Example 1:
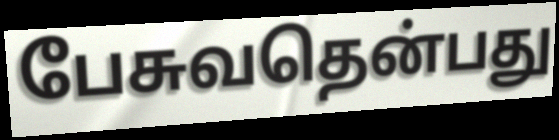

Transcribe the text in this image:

பேசுவதென்பது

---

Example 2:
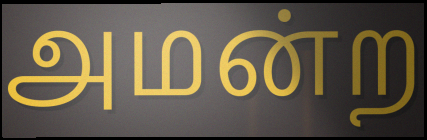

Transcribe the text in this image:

அமன்ற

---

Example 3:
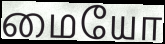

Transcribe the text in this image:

மையோ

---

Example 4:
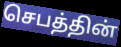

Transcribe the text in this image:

செபத்தின்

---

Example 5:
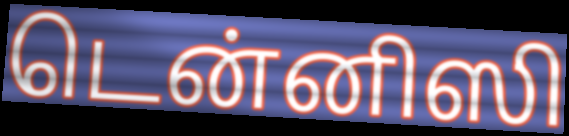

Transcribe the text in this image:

டென்னிஸி